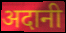
अदानी